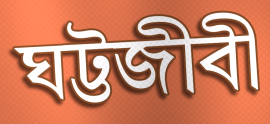
ঘট্টজীবী